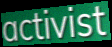
activist